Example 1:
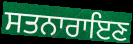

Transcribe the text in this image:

ਸਤਨਾਰਾਇਣ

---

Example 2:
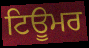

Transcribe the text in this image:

ਟਿਊਮਰ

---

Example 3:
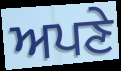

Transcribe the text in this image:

ਅਪਣੇ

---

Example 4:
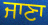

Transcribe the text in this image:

ਜਾਣਾ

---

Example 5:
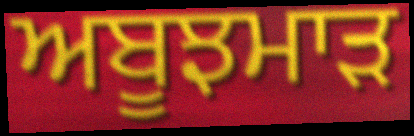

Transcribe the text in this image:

ਅਬੂਝਮਾੜ